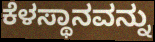
ಕೆಳಸ್ಥಾನವನ್ನು